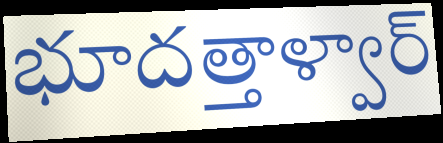
భూదత్తాళ్వార్